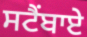
ਸਟੈਂਬਾਏ